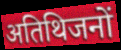
अतिथिजनों